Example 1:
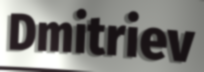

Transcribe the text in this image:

Dmitriev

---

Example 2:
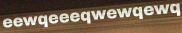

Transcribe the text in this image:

eewqeeeqwewqewq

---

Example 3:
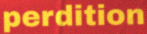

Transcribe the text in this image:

perdition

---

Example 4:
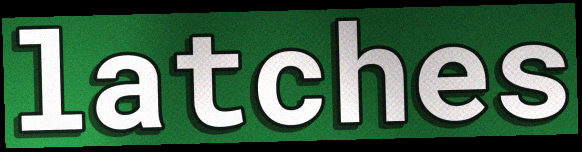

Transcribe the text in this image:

latches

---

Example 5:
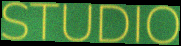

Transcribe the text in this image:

STUDIO